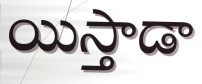
యిస్తాడా